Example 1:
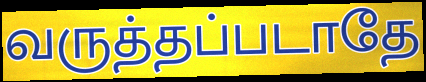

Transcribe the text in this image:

வருத்தப்படாதே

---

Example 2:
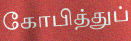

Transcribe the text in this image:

கோபித்துப்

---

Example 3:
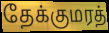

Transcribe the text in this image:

தேக்குமரத்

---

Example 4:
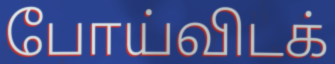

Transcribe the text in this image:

போய்விடக்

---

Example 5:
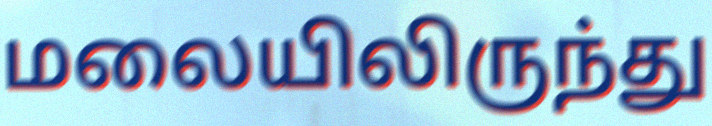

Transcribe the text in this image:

மலையிலிருந்து